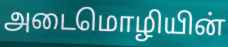
அடைமொழியின்